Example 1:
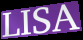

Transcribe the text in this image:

LISA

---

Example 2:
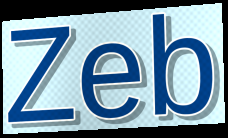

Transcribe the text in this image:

Zeb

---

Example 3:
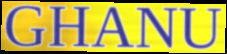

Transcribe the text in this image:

GHANU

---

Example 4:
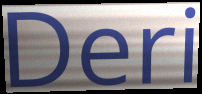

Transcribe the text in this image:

Deri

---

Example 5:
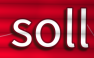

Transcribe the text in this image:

soll